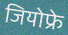
जियोफ्रे